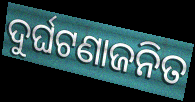
ଦୁର୍ଘଟଣାଜନିତ